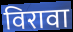
विरावा